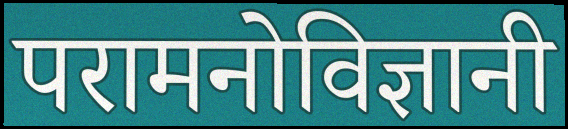
परामनोविज्ञानी